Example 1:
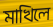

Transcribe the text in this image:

মাখিলে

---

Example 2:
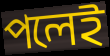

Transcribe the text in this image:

পলেই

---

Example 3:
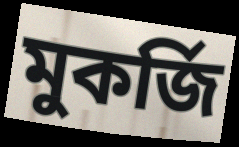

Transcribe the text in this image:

মুকর্জি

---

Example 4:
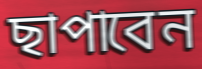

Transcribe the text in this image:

ছাপাবেন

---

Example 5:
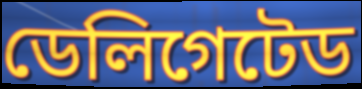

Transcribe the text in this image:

ডেলিগেটেড